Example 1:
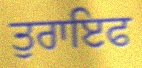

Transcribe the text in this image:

ਤੁਰਾਇਫ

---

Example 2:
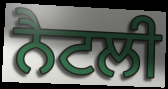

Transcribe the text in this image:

ਨੈਟਲੀ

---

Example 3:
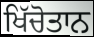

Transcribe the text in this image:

ਖਿੱਚੋਤਾਨ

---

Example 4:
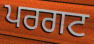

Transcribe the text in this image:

ਪਰਗਟ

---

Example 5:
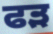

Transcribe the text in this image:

ਫੜ